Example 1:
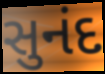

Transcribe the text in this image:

સુનંદ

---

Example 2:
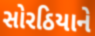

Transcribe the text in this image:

સોરઠિયાને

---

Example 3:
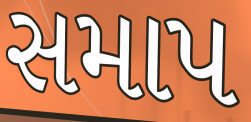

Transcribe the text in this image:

સમાપ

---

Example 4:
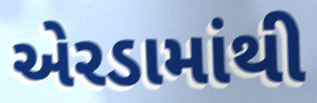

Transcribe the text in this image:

એરડામાંથી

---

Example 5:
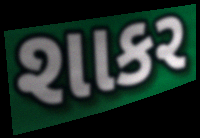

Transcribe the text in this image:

શાકર